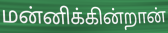
மன்னிக்கின்றான்